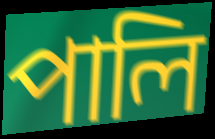
পালি